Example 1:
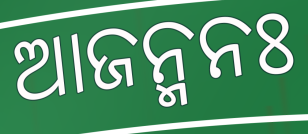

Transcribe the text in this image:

ଆଜନ୍ମନଃ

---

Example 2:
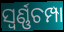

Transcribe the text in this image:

ସ୍ୱର୍ଣ୍ଣଚମ୍ପା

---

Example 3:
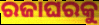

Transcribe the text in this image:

ରଜାଘରକୁ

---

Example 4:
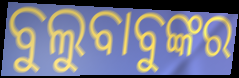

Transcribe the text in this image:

ବୁଲୁବାବୁଙ୍କର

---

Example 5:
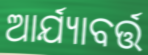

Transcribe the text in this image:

ଆର୍ଯ୍ୟାବର୍ତ୍ତ